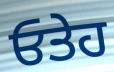
ਓਤੇਹ